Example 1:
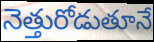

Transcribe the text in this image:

నెత్తురోడుతూనే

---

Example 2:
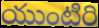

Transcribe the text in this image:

యుంటిరి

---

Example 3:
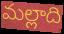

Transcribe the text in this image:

మల్లాది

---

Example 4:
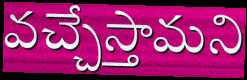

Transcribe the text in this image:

వచ్చేస్తామని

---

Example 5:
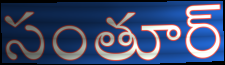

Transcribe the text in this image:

సంతూర్